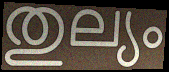
തുല്യം